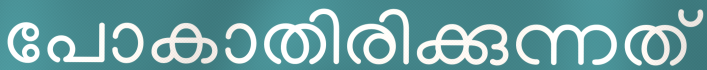
പോകാതിരിക്കുന്നത്